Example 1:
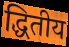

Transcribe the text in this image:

द्धितीय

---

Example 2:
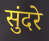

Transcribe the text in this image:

सुंदरे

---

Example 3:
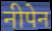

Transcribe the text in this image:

नीपेन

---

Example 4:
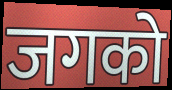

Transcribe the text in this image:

जगको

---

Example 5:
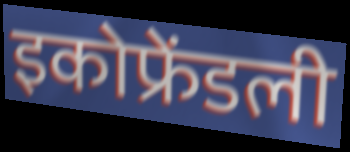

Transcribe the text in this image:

इकोफ्रेंडली